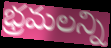
భ్రమలన్ని